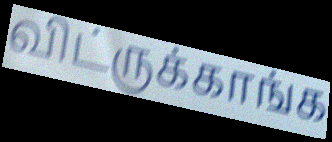
விட்ருக்காங்க